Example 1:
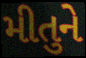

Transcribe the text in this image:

મીતુને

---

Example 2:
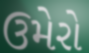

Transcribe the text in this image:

ઉમેરો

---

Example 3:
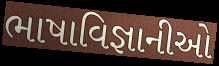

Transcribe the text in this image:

ભાષાવિજ્ઞાનીઓ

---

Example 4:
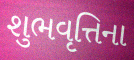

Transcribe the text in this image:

શુભવૃત્તિના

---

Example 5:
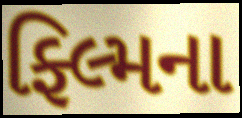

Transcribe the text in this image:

ફ્લ્મિના